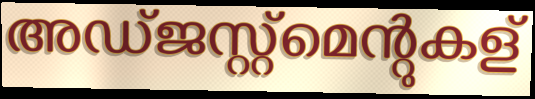
അഡ്ജസ്റ്റ്മെന്റുകള്